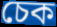
চেক